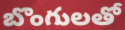
బొంగులతో